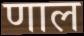
णाल